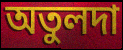
অতুলদা